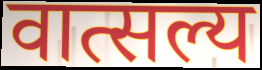
वात्सल्य